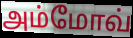
அம்மோவ்